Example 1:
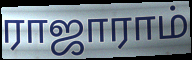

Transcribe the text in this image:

ராஜாராம்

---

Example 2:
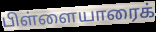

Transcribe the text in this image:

பிள்ளையாரைக்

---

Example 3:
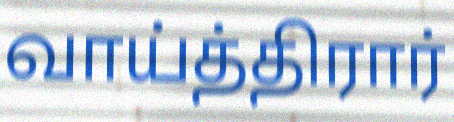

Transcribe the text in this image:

வாய்த்திரார்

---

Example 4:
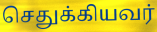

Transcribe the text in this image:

செதுக்கியவர்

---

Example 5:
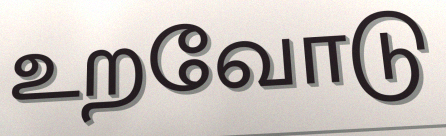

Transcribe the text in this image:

உறவோடு